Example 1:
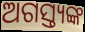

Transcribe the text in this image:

ଅଗସ୍ତ୍ୟଙ୍କ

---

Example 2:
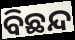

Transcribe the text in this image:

ବିଛନ୍ଦ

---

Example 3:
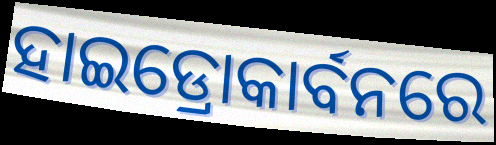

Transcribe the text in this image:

ହାଇଡ୍ରୋକାର୍ବନରେ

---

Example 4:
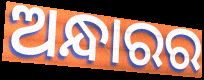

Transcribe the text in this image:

ଅନ୍ଧାରର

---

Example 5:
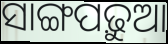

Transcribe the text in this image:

ସାଙ୍ଗପଢ଼ୁଆ